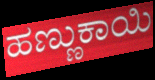
ಹಣ್ಣುಕಾಯಿ